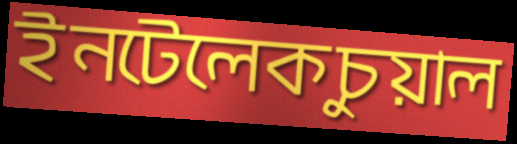
ইনটেলেকচুয়াল